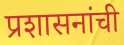
प्रशासनांची